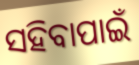
ସହିବାପାଇଁ